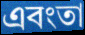
এবংতা